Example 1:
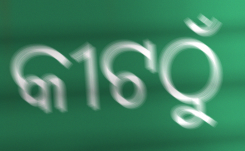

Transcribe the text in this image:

କୀଟଠୁଁ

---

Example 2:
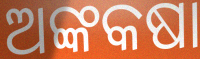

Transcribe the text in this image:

ଅଙ୍କକଷା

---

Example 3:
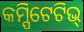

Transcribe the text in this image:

କମ୍ପିଟେଟିଭ୍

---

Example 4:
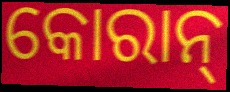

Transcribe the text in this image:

କୋରାନ୍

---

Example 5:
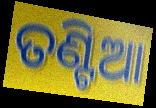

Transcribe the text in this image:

ତଣ୍ଟିଆ